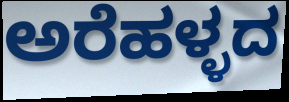
ಅರೆಹಳ್ಳದ